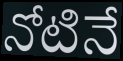
నోటినే